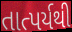
તાત્પર્યથી